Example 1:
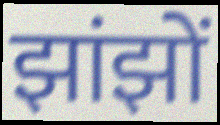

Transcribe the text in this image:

झांझों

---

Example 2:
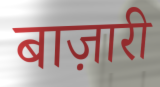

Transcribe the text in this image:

बाज़ारी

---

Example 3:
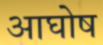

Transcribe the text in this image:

आघोष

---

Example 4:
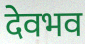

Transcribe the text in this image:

देवभव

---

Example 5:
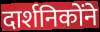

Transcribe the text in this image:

दार्शनिकोंने